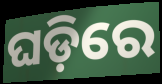
ଘଡ଼ିରେ